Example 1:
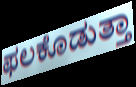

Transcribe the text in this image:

ಫಲಕೊಡುತ್ತಾ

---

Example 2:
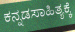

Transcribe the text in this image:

ಕನ್ನಡಸಾಹಿತ್ಯಕ್ಕೆ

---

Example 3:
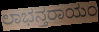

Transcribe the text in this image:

ಲಾಭನ್ತರಾಯಂ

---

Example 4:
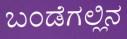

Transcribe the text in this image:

ಬಂಡೆಗಲ್ಲಿನ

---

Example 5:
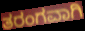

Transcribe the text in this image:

ತರಂಗವಾಗಿ